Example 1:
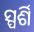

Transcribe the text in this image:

ସ୍ପର୍ଶି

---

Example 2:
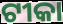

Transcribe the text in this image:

ଟୀକା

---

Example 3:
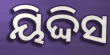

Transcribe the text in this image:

ୟିଦ୍ଦିସ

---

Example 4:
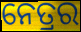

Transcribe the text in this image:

ନେତ୍ରର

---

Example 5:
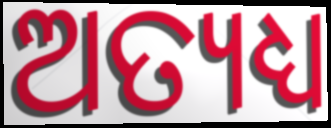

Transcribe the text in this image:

ଅତ୍ୟଧ୍ୟ